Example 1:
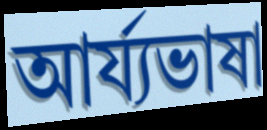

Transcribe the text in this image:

আর্য্যভাষা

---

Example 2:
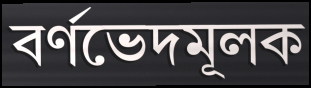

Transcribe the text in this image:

বর্ণভেদমূলক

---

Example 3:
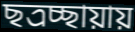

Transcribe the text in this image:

ছত্রচ্ছায়ায়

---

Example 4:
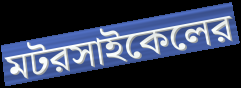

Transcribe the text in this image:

মটরসাইকেলের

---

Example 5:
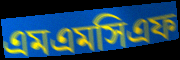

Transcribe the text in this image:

এমএমসিএফ